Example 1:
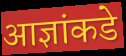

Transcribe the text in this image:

आज्ञांकडे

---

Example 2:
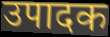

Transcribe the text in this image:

उपादक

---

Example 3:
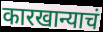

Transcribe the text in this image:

कारखान्याचं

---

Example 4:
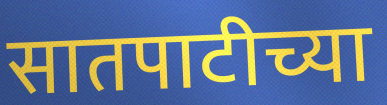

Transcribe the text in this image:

सातपाटीच्या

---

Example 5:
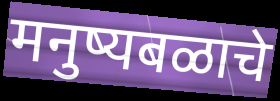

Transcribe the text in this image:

मनुष्यबळाचे